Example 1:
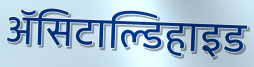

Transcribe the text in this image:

ॲसिटाल्डिहाइड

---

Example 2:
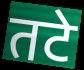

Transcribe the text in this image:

तटे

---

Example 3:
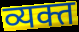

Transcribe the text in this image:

व्यक्‍त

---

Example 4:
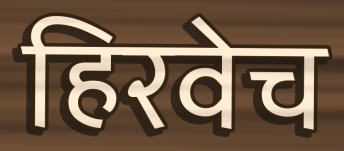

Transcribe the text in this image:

हिरवेच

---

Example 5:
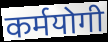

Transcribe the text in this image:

कर्मयोगी